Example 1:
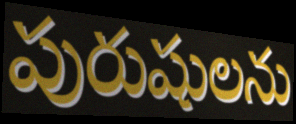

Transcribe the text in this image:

పురుషులను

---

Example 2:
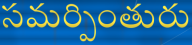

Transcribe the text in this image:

సమర్పింతురు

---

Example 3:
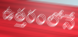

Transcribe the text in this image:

ఉత్తరంలోనే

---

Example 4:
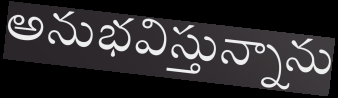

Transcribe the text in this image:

అనుభవిస్తున్నాను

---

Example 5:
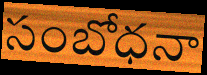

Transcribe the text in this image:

సంబోధనా